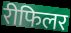
रीफिलर